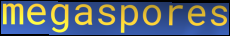
megaspores